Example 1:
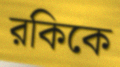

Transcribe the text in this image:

রকিকে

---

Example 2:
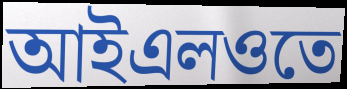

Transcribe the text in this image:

আইএলওতে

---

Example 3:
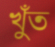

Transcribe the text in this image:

খুঁত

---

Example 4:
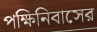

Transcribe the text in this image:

পক্ষিনিবাসের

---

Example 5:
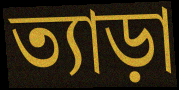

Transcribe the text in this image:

ত্যাড়া